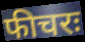
फीचरः